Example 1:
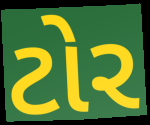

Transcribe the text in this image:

ટોર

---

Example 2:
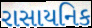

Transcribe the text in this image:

રાસાયનિક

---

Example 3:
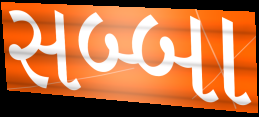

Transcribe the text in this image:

સબ્બા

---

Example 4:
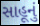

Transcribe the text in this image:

સાહૂનું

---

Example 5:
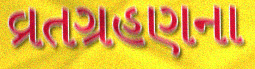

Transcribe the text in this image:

વ્રતગ્રહણના